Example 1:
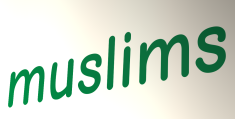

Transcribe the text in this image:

muslims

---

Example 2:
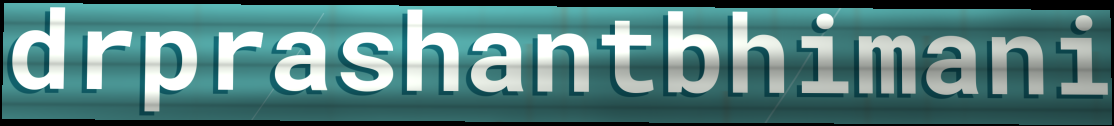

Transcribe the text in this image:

drprashantbhimani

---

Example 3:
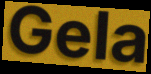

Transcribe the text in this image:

Gela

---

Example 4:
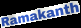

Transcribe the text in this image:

Ramakanth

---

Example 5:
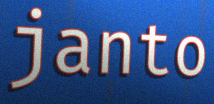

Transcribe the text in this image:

janto